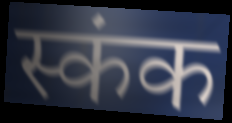
स्कंक